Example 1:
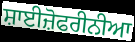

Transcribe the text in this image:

ਸ਼ਾਈਜ਼ੋਫਰੀਨੀਆ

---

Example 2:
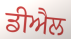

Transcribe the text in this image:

ਡੀਐਲ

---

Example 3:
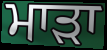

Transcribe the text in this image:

ਮਾਡ਼ਾ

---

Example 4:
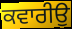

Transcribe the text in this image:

ਕਵਾਰੀਉ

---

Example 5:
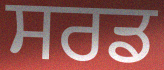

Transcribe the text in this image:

ਸਰਡ